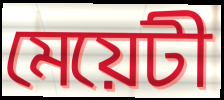
মেয়েটী